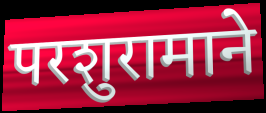
परशुरामाने